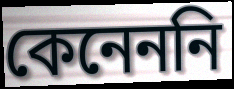
কেনেননি